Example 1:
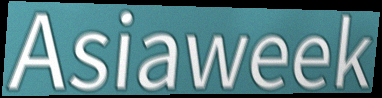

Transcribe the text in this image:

Asiaweek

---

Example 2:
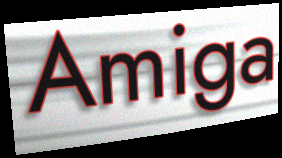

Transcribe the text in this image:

Amiga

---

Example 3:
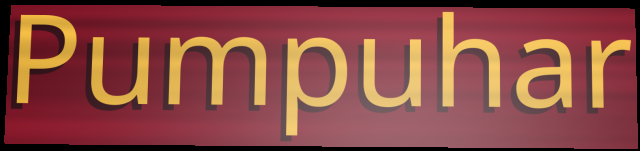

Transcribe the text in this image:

Pumpuhar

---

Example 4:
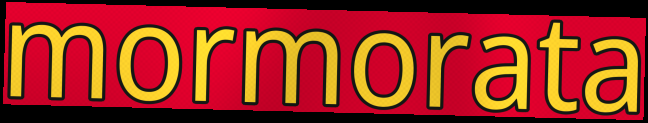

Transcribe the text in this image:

mormorata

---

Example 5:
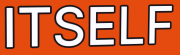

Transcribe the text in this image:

ITSELF